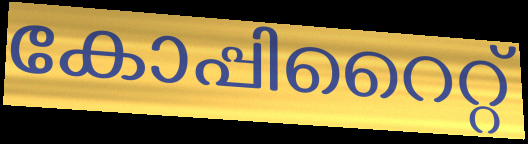
കോപ്പിറൈറ്റ്